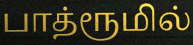
பாத்ரூமில்